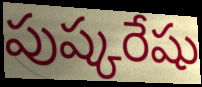
పుష్కరేషు